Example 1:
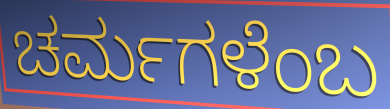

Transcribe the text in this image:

ಚರ್ಮಗಳೆಂಬ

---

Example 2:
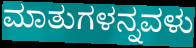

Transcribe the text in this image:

ಮಾತುಗಳನ್ನವಳು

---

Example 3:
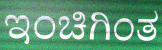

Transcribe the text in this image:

ಇಂಚಿಗಿಂತ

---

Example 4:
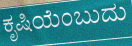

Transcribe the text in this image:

ಕೃಷಿಯೆಂಬುದು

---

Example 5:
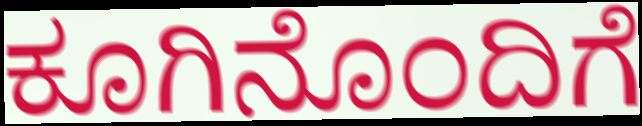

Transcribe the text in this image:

ಕೂಗಿನೊಂದಿಗೆ